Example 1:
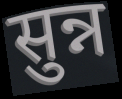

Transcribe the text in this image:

सुन्न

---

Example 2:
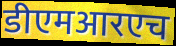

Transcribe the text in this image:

डीएमआरएच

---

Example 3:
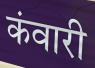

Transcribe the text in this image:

कंवारी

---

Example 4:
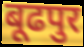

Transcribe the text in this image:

बूढपुर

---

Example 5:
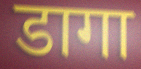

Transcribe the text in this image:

डागा